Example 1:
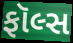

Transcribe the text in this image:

ફૉલ્સ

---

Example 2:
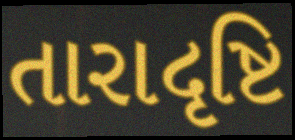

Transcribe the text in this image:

તારાદૃષ્ટિ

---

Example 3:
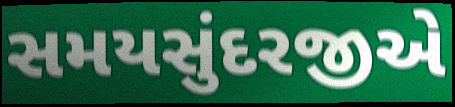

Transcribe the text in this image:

સમયસુંદરજીએ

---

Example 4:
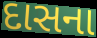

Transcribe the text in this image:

દાસના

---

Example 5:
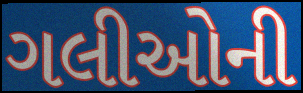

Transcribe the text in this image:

ગલીઓની